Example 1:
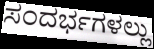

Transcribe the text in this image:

ಸಂದರ್ಭಗಳಲ್ಲು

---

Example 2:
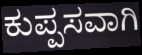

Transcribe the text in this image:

ಕುಪ್ಪಸವಾಗಿ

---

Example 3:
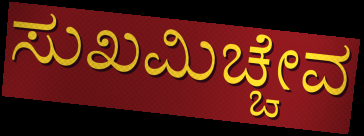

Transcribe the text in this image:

ಸುಖಮಿಚ್ಚೇವ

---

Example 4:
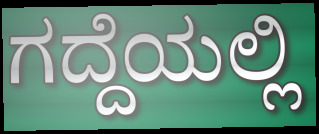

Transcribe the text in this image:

ಗದ್ದೆಯಲ್ಲಿ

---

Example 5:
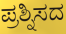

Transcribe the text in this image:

ಪ್ರಶ್ನಿಸದ